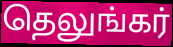
தெலுங்கர்